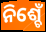
ନିଶ୍ଚେଁ